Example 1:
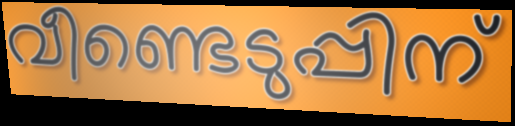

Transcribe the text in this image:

വീണ്ടെടുപ്പിന്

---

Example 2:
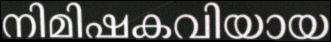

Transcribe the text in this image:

നിമിഷകവിയായ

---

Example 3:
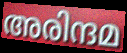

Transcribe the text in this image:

അരിന്ദമ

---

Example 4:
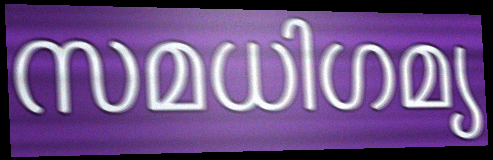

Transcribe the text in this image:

സമധിഗമ്യ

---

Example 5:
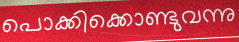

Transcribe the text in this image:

പൊക്കിക്കൊണ്ടുവന്നു